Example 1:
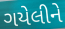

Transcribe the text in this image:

ગયેલીને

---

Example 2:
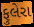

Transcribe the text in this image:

ફુલેરા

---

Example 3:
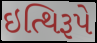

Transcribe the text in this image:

ઇત્થિરૂપે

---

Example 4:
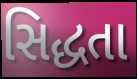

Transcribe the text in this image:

સિદ્ધતા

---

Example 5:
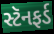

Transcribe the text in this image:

સ્ટૅનફર્ડ